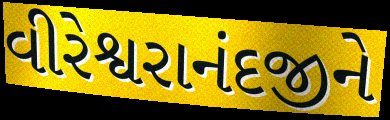
વીરેશ્વરાનંદજીને